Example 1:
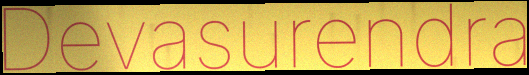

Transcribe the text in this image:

Devasurendra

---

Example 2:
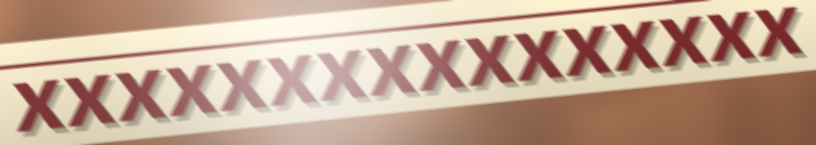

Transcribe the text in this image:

xxxxxxxxxxxxxxxx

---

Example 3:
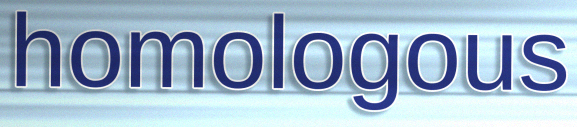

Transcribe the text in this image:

homologous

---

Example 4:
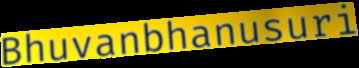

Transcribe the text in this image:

Bhuvanbhanusuri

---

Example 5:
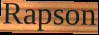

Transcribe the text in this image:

Rapson